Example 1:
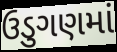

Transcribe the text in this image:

ઉડુગણમાં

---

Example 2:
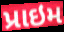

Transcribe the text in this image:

પ્રાઇમ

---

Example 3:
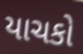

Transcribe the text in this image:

યાચકો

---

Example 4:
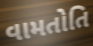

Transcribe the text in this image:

વામતોતિ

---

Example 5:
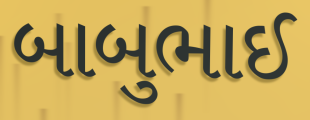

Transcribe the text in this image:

બાબુભાઈ